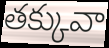
తక్కువా